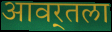
आवर्तला